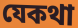
যেকথা